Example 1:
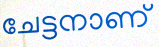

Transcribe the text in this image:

ചേട്ടനാണ്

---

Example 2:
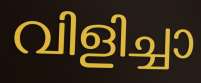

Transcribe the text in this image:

വിളിച്ചാ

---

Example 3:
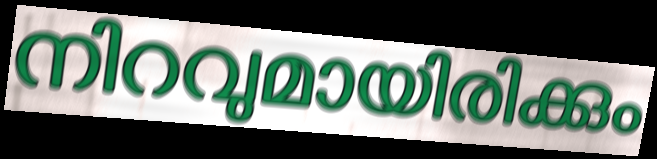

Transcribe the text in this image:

നിറവുമായിരിക്കും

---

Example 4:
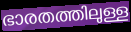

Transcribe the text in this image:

ഭാരതത്തിലുള്ള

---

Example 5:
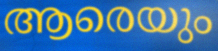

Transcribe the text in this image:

ആരെയും